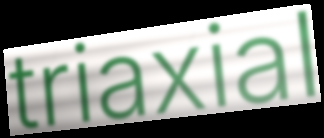
triaxial